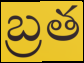
బ్రత